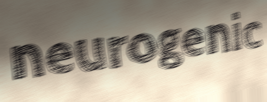
neurogenic